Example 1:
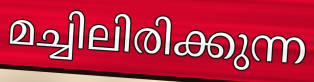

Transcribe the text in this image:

മച്ചിലിരിക്കുന്ന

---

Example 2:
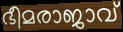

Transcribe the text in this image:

ഭീമരാജാവ്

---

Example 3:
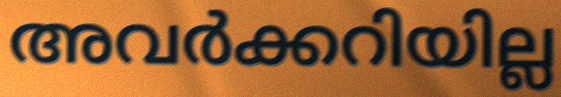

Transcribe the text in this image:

അവർക്കറിയില്ല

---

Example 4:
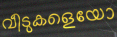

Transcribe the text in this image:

വീടുകളെയോ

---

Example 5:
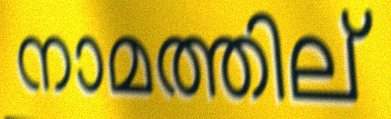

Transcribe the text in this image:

നാമത്തില്